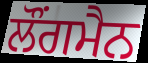
ਲੌਂਗਮੈਨ